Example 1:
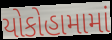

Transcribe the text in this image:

યોકોહામામાં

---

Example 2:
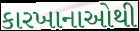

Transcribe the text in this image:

કારખાનાઓથી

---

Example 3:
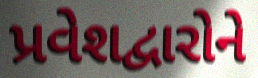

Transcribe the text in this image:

પ્રવેશદ્વારોને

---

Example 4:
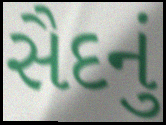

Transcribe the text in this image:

સૈદનું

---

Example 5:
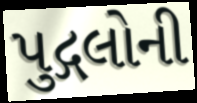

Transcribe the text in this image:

પુદ્ગલોની